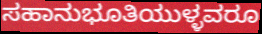
ಸಹಾನುಭೂತಿಯುಳ್ಳವರೂ